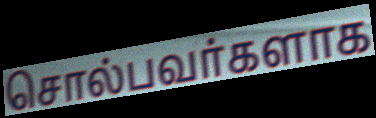
சொல்பவர்களாக